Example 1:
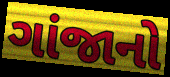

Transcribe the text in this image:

ગાંજાનો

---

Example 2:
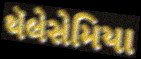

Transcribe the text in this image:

થૅલેસેમિયા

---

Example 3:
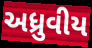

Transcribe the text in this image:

અધ્રુવીય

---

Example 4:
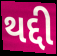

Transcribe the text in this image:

થદ્દી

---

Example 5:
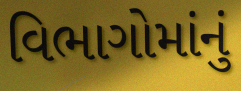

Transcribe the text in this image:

વિભાગોમાંનું